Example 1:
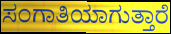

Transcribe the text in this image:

ಸಂಗಾತಿಯಾಗುತ್ತಾರೆ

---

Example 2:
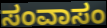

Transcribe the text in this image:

ಸಂವಾಸಂ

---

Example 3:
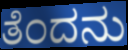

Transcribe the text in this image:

ತೆಂದನು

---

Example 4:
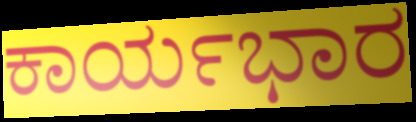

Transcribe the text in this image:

ಕಾರ್ಯಭಾರ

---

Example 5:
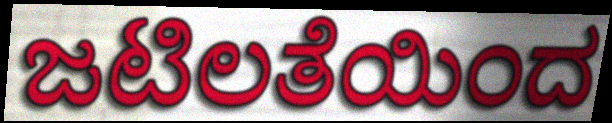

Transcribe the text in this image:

ಜಟಿಲತೆಯಿಂದ